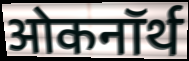
ओकनॉर्थ